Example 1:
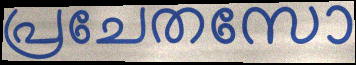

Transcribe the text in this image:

പ്രചേതസോ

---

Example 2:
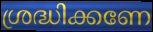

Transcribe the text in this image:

ശ്രദ്ധിക്കണേ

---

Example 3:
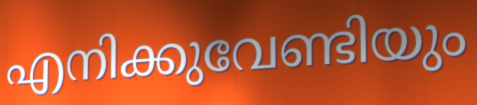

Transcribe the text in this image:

എനിക്കുവേണ്ടിയും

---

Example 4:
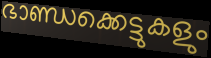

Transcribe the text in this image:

ഭാണ്ഡക്കെട്ടുകളും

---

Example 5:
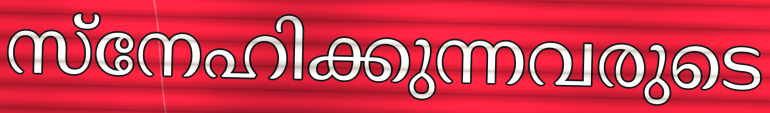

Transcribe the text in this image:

സ്നേഹിക്കുന്നവരുടെ